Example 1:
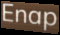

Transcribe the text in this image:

Enap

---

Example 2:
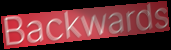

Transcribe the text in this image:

Backwards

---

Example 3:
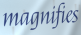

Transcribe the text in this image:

magnifies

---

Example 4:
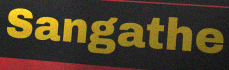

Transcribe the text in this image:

Sangathe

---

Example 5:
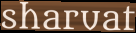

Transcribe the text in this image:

sharuat